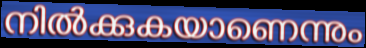
നിൽക്കുകയാണെന്നും